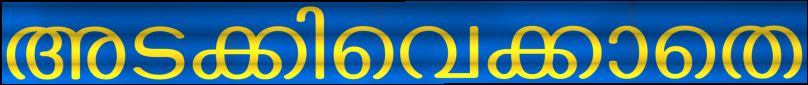
അടക്കിവെക്കാതെ